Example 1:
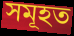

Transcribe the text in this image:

সমূহত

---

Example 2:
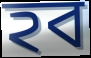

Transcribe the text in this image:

হব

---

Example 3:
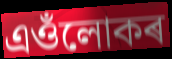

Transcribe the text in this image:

এওঁলোকৰ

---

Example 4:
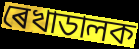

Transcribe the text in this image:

ৰেখাডালক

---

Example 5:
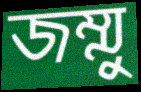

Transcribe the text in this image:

জম্মু